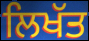
ਲਿਖੱਤ